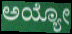
ಅಯ್ಯೋ